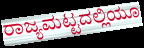
ರಾಜ್ಯಮಟ್ಟದಲ್ಲಿಯೂ